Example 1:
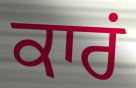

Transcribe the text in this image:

ਕਾਰਂ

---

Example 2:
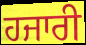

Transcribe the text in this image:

ਹਜਾਰੀ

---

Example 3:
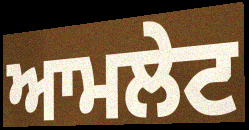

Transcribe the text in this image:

ਆਮਲੇਟ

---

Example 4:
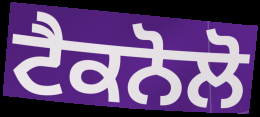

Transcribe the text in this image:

ਟੈਕਨੋਲੋ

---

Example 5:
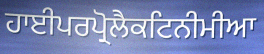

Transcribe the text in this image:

ਹਾਈਪਰਪ੍ਰੋਲੈਕਟਿਨੀਮੀਆ